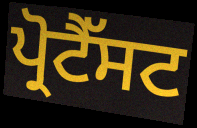
ਪ੍ਰੋਟੈੱਸਟ